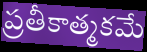
ప్రతీకాత్మకమే